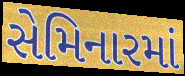
સેમિનારમાં